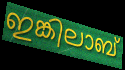
ഇങ്കിലാബ്